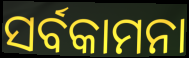
ସର୍ବକାମନା